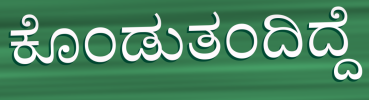
ಕೊಂಡುತಂದಿದ್ದೆ